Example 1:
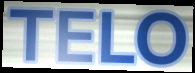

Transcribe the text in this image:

TELO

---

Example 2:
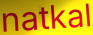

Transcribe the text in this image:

natkal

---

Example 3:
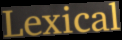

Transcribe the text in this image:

Lexical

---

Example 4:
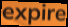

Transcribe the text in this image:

expire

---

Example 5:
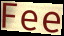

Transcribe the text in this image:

Fee